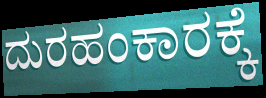
ದುರಹಂಕಾರಕ್ಕೆ